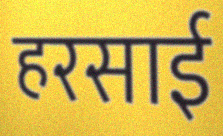
हरसाई